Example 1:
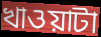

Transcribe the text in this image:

খাওয়াটা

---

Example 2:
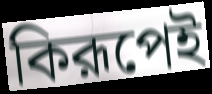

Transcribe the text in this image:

কিরূপেই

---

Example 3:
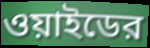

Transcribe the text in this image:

ওয়াইডের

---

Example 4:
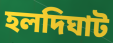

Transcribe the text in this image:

হলদিঘাট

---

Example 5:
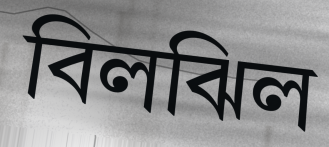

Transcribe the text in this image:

বিলঝিল